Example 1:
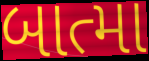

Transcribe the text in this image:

બાત્મા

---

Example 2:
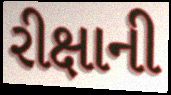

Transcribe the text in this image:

રીક્ષાની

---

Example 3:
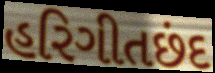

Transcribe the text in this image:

હરિગીતછંદ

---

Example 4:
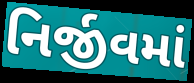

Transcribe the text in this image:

નિર્જીવમાં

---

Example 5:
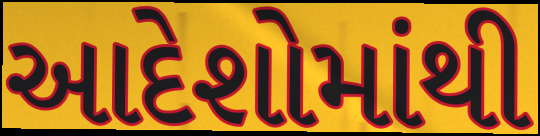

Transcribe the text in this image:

આદેશોમાંથી